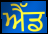
ਐੱਡ